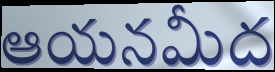
ఆయనమీద